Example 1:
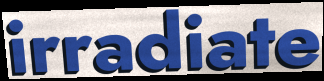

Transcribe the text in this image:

irradiate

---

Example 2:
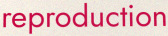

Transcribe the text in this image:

reproduction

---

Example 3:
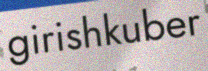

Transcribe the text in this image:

girishkuber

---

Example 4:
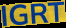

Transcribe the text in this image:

IGRT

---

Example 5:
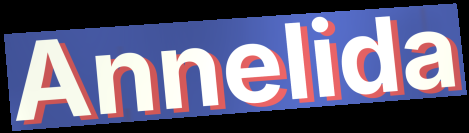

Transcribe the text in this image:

Annelida